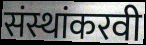
संस्थांकरवी